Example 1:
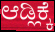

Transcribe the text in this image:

ಆಡ್ಲಿಕ್ಕೆ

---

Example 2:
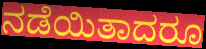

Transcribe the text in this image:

ನಡೆಯಿತಾದರೂ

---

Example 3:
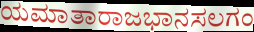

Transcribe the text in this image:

ಯಮಾತಾರಾಜಭಾನಸಲಗಂ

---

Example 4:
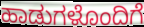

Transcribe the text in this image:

ಹಾಡುಗಳೊಂದಿಗೆ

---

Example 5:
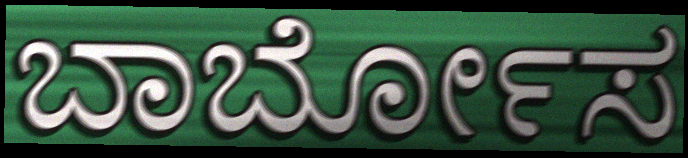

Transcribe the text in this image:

ಬಾರ್ಬೋಸ